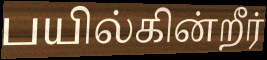
பயில்கின்றீர்